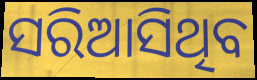
ସରିଆସିଥିବ